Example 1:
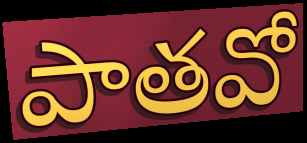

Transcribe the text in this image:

పాతవో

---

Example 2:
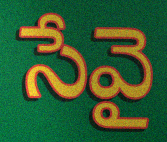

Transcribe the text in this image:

సేవై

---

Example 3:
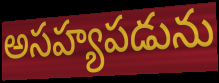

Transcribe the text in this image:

అసహ్యపడును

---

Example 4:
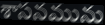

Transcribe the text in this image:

శాసనమును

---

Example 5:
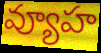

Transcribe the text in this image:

వ్యూహ